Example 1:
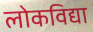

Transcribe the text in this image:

लोकविद्या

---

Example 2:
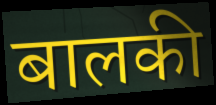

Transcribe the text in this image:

बालकी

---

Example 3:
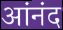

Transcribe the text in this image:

आंनंद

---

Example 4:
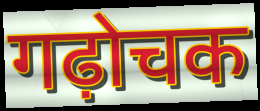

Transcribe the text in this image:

गढ़ोचक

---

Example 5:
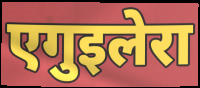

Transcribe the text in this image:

एगुइलेरा